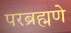
परब्रह्मणे